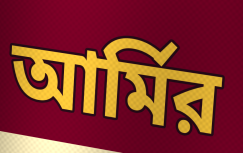
আর্মির